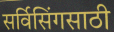
सर्विसिंगसाठी